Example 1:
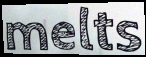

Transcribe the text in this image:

melts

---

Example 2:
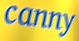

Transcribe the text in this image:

canny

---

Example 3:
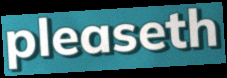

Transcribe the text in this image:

pleaseth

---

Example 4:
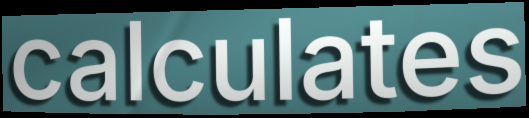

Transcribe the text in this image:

calculates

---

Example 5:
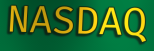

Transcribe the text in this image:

NASDAQ